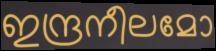
ഇന്ദ്രനീലമോ